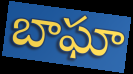
బాఘా